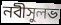
নবীসুলভ